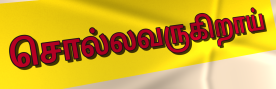
சொல்லவருகிறாய்